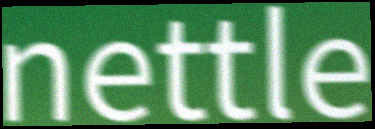
nettle